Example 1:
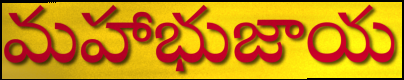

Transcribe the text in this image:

మహాభుజాయ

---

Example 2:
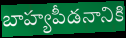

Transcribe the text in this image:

బాహ్యపీడనానికి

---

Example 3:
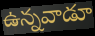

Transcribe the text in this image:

ఉన్నవాడూ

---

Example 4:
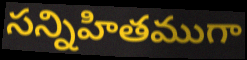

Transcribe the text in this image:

సన్నిహితముగా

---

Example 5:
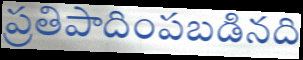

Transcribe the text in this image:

ప్రతిపాదింపబడినది